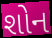
શોન